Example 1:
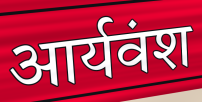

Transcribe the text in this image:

आर्यवंश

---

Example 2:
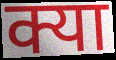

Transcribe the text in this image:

क्या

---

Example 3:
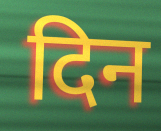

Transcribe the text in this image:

दिन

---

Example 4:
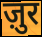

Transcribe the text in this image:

ज़ुर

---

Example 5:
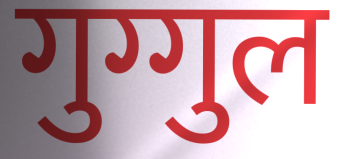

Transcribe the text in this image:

गुग्गुल